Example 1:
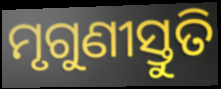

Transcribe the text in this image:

ମୃଗୁଣୀସ୍ତୁତି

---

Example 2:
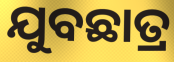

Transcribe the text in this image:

ଯୁବଛାତ୍ର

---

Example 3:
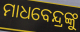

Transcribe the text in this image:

ମାଧବେନ୍ଦ୍ରଙ୍କୁ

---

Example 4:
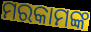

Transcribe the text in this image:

ମରକାମଙ୍କ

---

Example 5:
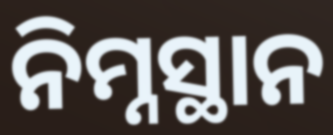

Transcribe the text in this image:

ନିମ୍ନସ୍ଥାନ